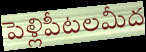
పెళ్లిపీటలమీద